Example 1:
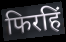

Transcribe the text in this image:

फिरहिं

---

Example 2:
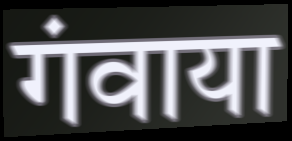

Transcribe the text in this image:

गंवाया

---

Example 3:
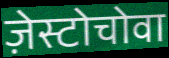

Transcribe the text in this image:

ज़ेस्टोचोवा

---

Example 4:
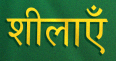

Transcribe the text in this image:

शीलाएँ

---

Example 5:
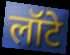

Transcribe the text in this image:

लॉटे